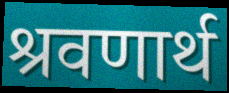
श्रवणार्थ